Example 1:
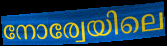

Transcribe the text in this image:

നോര്വേയിലെ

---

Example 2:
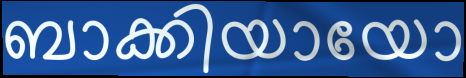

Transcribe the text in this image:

ബാക്കിയായോ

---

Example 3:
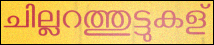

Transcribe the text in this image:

ചില്ലറത്തുട്ടുകള്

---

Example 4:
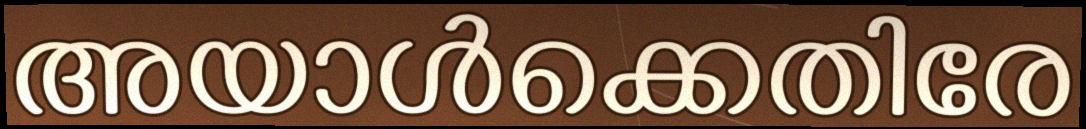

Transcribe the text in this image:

അയാൾക്കെതിരേ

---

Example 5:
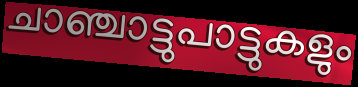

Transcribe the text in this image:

ചാഞ്ചാട്ടുപാട്ടുകളും